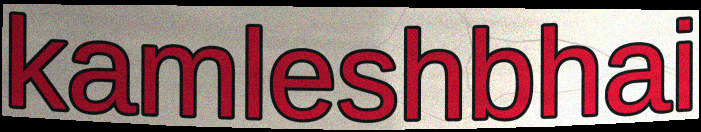
kamleshbhai